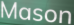
Mason